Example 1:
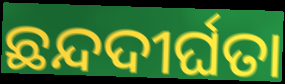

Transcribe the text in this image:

ଛନ୍ଦଦୀର୍ଘତା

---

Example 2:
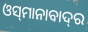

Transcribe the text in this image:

ଓସ୍‌ମାନାବାଦ୍‌ର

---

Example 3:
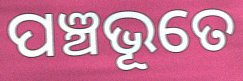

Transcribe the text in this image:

ପଞ୍ଚଭୂତେ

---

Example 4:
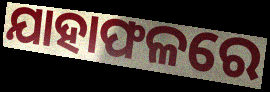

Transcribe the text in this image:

ଯାହାଫଳରେ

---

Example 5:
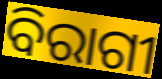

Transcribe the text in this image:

ବିରାଗୀ